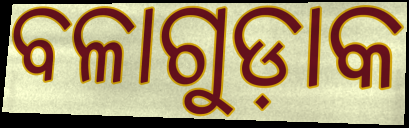
ବଳାଗୁଡ଼ାକ